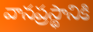
వానప్రస్థానికి